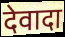
देवादा